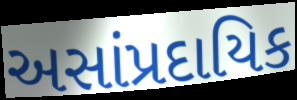
અસાંપ્રદાયિક